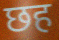
छह